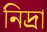
নিদ্ৰা